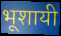
भूशायी